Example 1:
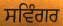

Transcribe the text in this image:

ਸਵਿੰਗਰ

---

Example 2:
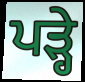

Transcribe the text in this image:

ਪੜ੍ਹੇ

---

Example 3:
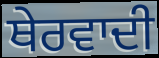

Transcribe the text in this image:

ਥੇਰਵਾਦੀ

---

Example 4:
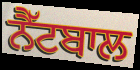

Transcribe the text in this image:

ਨੈੱਟਬਾਲ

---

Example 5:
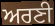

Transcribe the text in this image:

ਅਰਣੀ